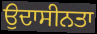
ਉਦਾਸੀਨਤਾ